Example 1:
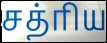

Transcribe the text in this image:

சத்ரிய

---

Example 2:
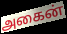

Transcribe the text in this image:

அகைன்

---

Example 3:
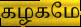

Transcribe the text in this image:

கழகமே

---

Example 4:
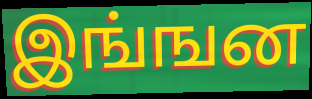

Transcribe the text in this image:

இங்ஙன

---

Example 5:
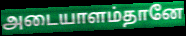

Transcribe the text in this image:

அடையாளம்தானே